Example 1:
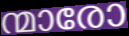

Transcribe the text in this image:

ന്മാരോ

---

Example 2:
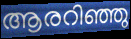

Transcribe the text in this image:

ആരറിഞ്ഞു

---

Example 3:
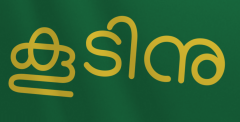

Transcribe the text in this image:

കൂടിനു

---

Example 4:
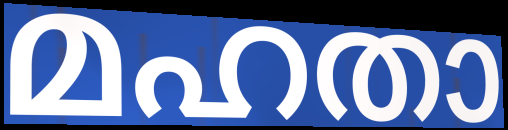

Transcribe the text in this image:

മഹതാ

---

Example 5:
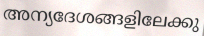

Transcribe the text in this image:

അന്യദേശങ്ങളിലേക്കു